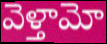
వెళ్తామో